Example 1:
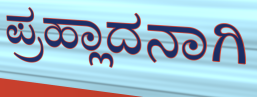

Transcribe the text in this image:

ಪ್ರಹ್ಲಾದನಾಗಿ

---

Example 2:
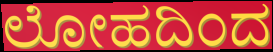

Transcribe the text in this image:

ಲೋಹದಿಂದ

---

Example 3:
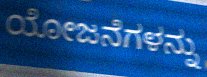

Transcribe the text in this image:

ಯೋಜನೆಗಳನ್ನು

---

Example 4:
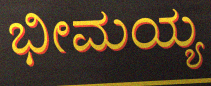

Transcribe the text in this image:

ಭೀಮಯ್ಯ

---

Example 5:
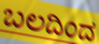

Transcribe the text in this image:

ಬಲದಿಂದ